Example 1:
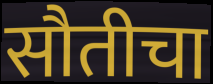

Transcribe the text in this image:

सौतीचा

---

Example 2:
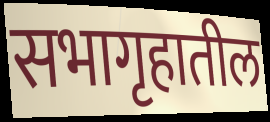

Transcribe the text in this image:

सभागृहातील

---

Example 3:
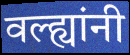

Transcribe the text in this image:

वल्ह्यांनी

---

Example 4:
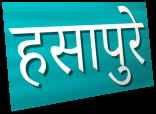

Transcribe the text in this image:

हसापुरे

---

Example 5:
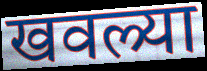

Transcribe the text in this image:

खवल्या